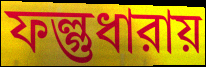
ফল্গুধারায়